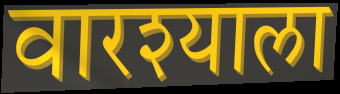
वारश्याला